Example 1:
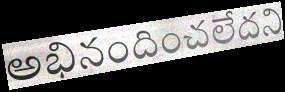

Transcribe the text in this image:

అభినందించలేదని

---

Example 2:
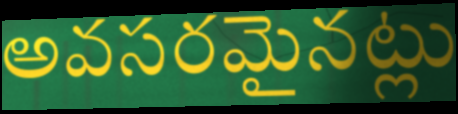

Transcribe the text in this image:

అవసరమైనట్లు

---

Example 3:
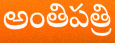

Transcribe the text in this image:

అంతిపత్రి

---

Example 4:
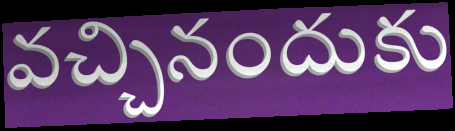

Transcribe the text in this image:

వచ్చినందుకు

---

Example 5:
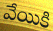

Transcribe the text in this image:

వేయికి